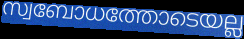
സ്വബോധത്തോടെയല്ല